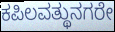
ಕಪಿಲವತ್ಥುನಗರೇ